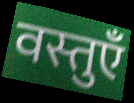
वस्‍तुएँ